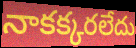
నాకక్కరలేదు